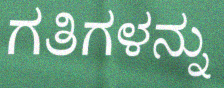
ಗತಿಗಳನ್ನು